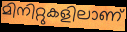
മിനിറ്റുകളിലാണ്